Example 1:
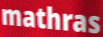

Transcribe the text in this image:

mathras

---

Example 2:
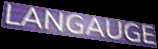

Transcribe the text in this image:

LANGAUGE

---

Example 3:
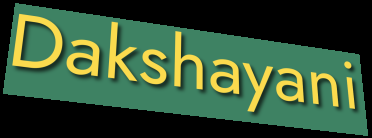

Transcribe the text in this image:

Dakshayani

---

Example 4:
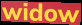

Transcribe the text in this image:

widow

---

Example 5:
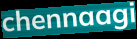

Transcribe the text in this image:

chennaagi